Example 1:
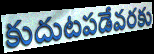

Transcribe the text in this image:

కుదుటపడేవరకు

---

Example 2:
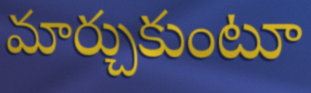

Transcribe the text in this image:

మార్చుకుంటూ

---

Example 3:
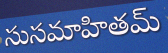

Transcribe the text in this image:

సుసమాహితమ్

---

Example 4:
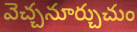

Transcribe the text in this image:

వెచ్చనూర్చుచుం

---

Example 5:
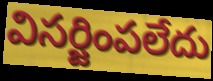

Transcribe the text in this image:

విసర్జింపలేదు